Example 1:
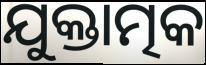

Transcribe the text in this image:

ଯୁକ୍ତାତ୍ମକ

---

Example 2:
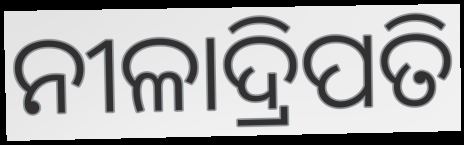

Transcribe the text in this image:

ନୀଳାଦ୍ରିପତି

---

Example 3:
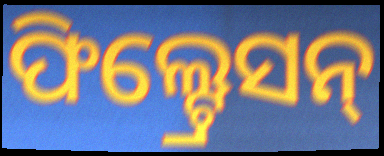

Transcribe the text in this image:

ଫିଲ୍ଟ୍ରେସନ୍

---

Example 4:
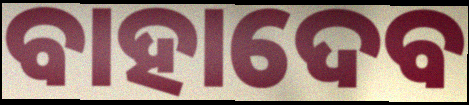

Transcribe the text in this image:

ବାହାଦେବ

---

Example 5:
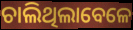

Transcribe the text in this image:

ଚାଲିଥିଲାବେଳେ